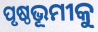
ପୃଷ୍ଠଭୂମୀକୁ